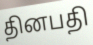
தினபதி